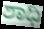
ಶಾಧಿ